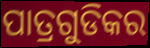
ପାତ୍ରଗୁଡିକର